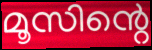
മൂസിന്റെ